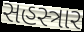
સહસ્ત્રાર